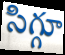
సిగ్గూ